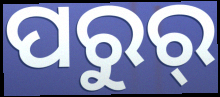
ପରୁର୍